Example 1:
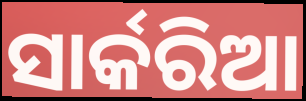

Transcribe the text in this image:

ସାର୍କରିଆ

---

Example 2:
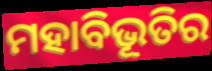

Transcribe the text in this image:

ମହାବିଭୂତିର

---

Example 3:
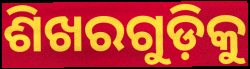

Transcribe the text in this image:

ଶିଖରଗୁଡ଼ିକୁ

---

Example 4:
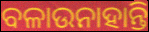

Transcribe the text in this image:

ବଳାଉନାହାନ୍ତି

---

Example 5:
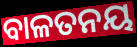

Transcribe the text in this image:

ବାଳତନୟ